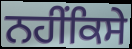
ਨਹੀਂਕਿਸੇ